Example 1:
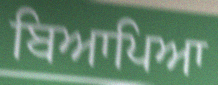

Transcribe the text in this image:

ਬਿਆਪਿਆ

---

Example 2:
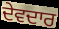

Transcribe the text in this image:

ਦੇਵਦਾਰ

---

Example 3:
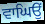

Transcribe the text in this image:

ਵਾਘਿਉਂ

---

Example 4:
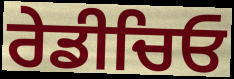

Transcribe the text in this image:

ਰੇਡੀਚਿਓ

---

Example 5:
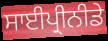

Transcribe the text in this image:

ਸਾਈਪ੍ਰੀਨੀਡੇ